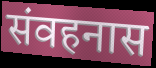
संवहनास